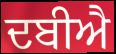
ਦਬੀਐ